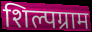
शिल्पग्राम